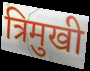
त्रिमुखी